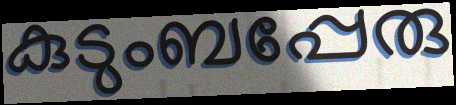
കുടുംബപ്പേരു